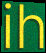
ih